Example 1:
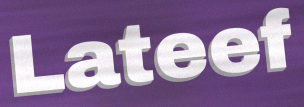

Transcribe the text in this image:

Lateef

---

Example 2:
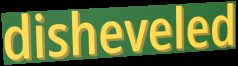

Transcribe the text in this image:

disheveled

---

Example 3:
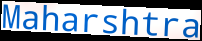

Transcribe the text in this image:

Maharshtra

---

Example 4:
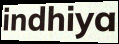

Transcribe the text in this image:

indhiya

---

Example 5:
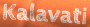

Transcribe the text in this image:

Kalavati